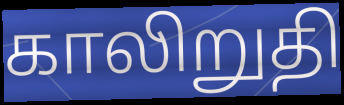
காலிறுதி